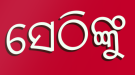
ସେଠିଙ୍କୁ